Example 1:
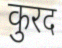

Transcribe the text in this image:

कुरद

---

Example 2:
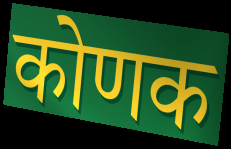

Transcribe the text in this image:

कोणक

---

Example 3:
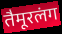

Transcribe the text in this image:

तैमूरलंग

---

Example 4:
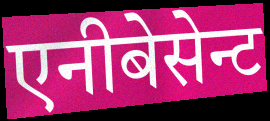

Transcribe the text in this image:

एनीबेसेन्ट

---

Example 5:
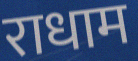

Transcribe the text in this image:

राधाम